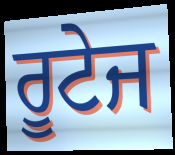
ਰੂਟੇਜ